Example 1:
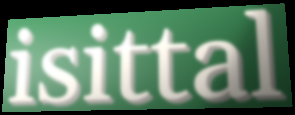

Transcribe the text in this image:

isittal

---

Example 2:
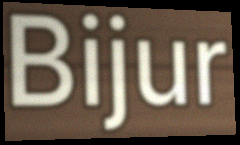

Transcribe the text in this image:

Bijur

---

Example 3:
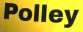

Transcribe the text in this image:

Polley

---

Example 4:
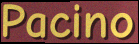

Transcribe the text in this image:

Pacino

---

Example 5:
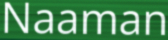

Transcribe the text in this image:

Naaman